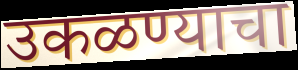
उकळण्याचा